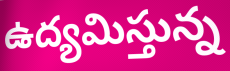
ఉద్యమిస్తున్న